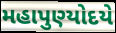
મહાપુણ્યોદયે